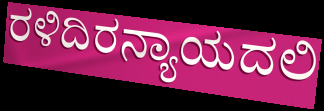
ರಳಿದಿರನ್ಯಾಯದಲಿ